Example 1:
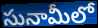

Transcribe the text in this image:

సునామీలో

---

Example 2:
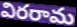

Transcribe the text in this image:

విరరామ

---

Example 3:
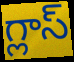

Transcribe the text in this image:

గ్లాస్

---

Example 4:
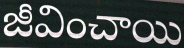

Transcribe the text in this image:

జీవించాయి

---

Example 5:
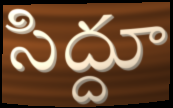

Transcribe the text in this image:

సిద్దూ